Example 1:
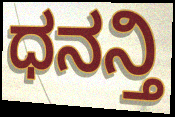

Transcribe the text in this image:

ಧನನ್ತಿ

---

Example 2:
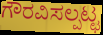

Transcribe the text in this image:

ಗೌರವಿಸಲ್ಪಟ್ಟ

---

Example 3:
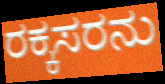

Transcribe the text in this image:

ರಕ್ಕಸರನು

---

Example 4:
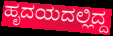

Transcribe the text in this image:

ಹೃದಯದಲ್ಲಿದ್ದ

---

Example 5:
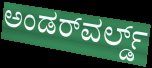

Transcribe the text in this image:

ಅಂಡರ್‌ವರ್ಲ್ಡ್